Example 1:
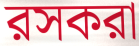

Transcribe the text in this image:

রসকরা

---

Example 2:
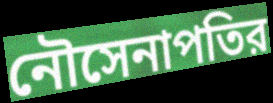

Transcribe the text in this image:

নৌসেনাপতির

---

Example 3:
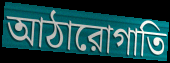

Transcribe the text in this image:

আঠারোগাতি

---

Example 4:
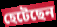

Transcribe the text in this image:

হেটেছেন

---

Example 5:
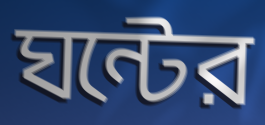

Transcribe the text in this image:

ঘন্টের